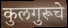
कुलगुरूचे